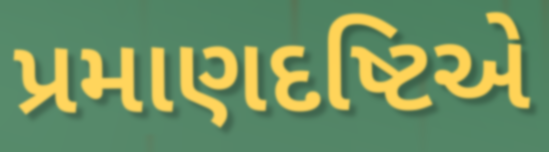
પ્રમાણદષ્ટિએ